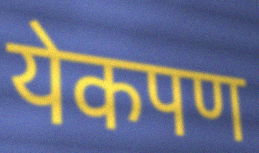
येकपण